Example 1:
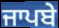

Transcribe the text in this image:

ਜਾਪਬੇ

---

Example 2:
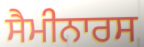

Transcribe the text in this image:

ਸੈਮੀਨਾਰਸ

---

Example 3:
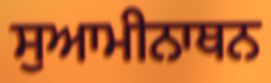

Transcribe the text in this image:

ਸੁਆਮੀਨਾਥਨ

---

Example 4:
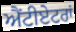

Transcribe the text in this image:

ਐਂਟੀਏਟਰਾਂ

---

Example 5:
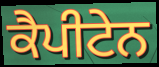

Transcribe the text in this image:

ਕੈਪੀਟੇਨ